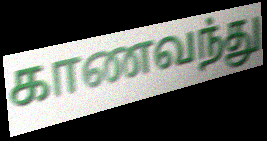
காணவந்து